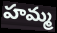
హమ్మ